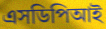
এসডিপিআই